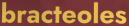
bracteoles